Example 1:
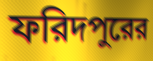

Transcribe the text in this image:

ফরিদপুরের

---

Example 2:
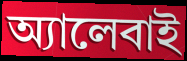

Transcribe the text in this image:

অ্যালেবাই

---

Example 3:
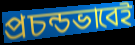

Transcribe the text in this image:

প্রচন্ডভাবেই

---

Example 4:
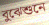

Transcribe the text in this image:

বুঝেশুনে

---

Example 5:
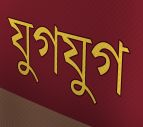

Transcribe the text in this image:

যুগযুগ